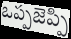
ఒప్పజెప్పి